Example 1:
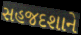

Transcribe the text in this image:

સહજદશાને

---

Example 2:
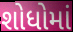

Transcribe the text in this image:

શોધોમાં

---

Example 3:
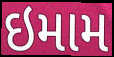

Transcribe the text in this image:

ઇમામ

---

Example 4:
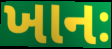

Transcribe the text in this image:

ખાનઃ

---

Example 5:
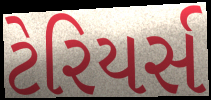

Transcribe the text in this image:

ટેરિયર્સ